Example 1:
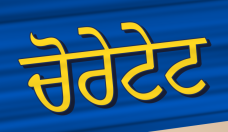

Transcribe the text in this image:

ਚੋਰੇਟੇਟ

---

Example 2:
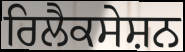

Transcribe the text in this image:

ਰਿਲੈਕਸੇਸ਼ਨ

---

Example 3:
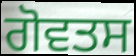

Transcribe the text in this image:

ਗੋਵਤਸ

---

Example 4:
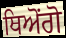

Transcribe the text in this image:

ਥਿਅੋਂਗੋ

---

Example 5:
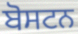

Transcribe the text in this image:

ਬੋਸਟਨ